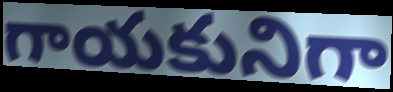
గాయకునిగా